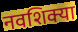
नवशिक्या